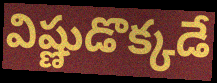
విష్ణుడొక్కడే